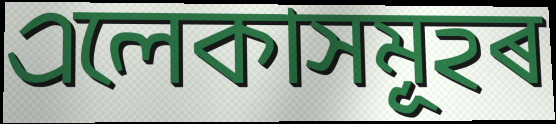
এলেকাসমূহৰ